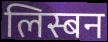
लिस्बन